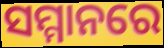
ସମ୍ମାନରେ